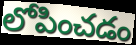
లోపించడం